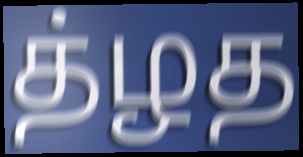
த்ழத